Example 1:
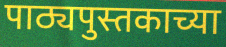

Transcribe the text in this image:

पाठ्यपुस्तकाच्या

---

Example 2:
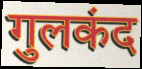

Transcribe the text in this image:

गुलकंद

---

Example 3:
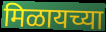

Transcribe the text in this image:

मिळायच्या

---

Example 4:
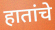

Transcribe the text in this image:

हातांचे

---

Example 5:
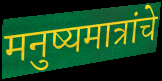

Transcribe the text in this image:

मनुष्यमात्रांचे